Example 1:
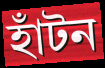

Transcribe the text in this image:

হাঁটন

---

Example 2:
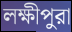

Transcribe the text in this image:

লক্ষীপুরা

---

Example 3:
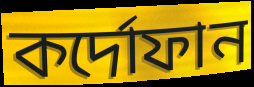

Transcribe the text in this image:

কর্দোফান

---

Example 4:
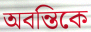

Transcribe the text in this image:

অবন্তিকে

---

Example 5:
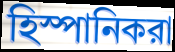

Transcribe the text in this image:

হিস্পানিকরা